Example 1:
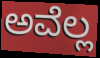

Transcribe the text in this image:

ಅವೆಲ್ಲ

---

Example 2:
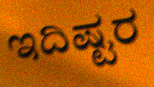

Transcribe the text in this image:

ಇದಿಷ್ಟರ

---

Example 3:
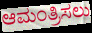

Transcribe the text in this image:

ಆಮಂತ್ರಿಸಲು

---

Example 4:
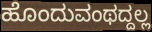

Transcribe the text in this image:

ಹೊಂದುವಂಥದ್ದಲ್ಲ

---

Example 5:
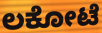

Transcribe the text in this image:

ಲಕೋಟೆ